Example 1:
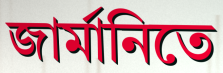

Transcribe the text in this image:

জার্মানিতে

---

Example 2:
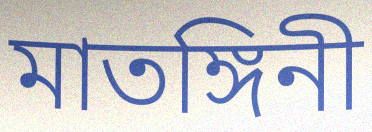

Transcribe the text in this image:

মাতঙ্গিনী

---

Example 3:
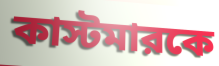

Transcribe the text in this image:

কাস্টমারকে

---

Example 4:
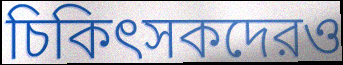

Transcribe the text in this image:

চিকিৎসকদেরও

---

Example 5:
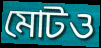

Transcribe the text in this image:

মোটও